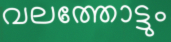
വലത്തോട്ടും